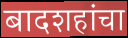
बादशहांचा